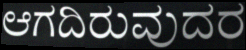
ಆಗದಿರುವುದರ